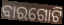
ବାରଗୋଟି